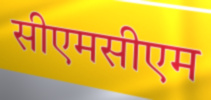
सीएमसीएम